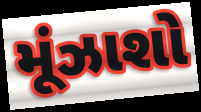
મૂંઝાશો